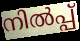
നിൽപ്പ്